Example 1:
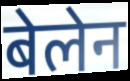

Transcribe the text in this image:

बेलेन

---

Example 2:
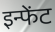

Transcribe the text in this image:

इन्फेंट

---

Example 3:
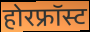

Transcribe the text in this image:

होरफ्रॉस्ट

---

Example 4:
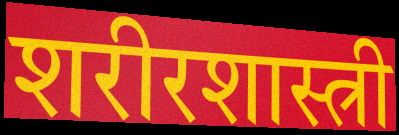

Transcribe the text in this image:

शरीरशास्त्री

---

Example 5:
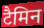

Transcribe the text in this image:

टैमिन